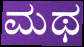
ಮಥ